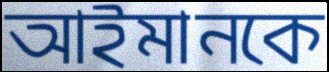
আইমানকে